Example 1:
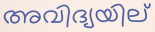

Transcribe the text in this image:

അവിദ്യയില്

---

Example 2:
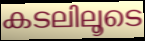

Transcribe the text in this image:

കടലിലൂടെ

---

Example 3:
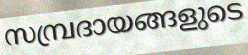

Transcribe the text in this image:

സമ്പ്രദായങ്ങളുടെ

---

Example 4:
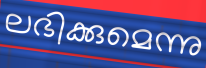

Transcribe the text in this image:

ലഭിക്കുമെന്നു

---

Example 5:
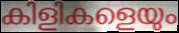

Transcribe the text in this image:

കിളികളെയും